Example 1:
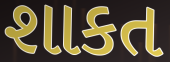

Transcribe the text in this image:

શાકત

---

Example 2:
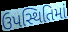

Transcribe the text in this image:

ઉપસ્થિતિમાં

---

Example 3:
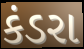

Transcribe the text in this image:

કંડરા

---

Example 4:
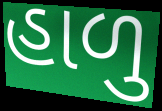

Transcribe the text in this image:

હાળુ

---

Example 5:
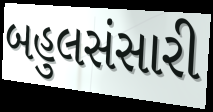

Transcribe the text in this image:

બહુલસંસારી